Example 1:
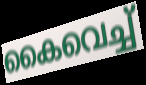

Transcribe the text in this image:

കൈവെച്ച്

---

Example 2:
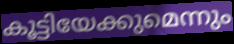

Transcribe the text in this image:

കൂട്ടിയേക്കുമെന്നും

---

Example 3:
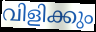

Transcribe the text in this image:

വിളിക്കും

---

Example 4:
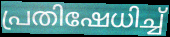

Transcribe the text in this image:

പ്രതിഷേധിച്ച്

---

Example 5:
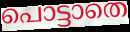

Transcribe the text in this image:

പൊട്ടാതെ